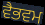
ਵੈਭਵਮ